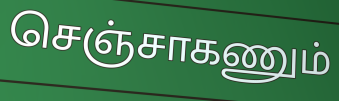
செஞ்சாகணும்